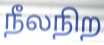
நீலநிற